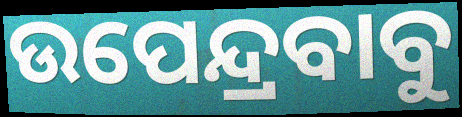
ଉପେନ୍ଦ୍ରବାବୁ